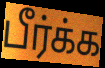
பீர்க்க